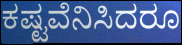
ಕಷ್ಟವೆನಿಸಿದರೂ